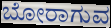
ಬೋರಾಗುವ